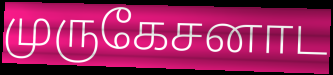
முருகேசனாட